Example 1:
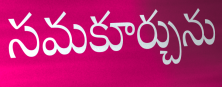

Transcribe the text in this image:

సమకూర్చును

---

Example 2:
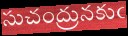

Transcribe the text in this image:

సుచంద్రునకుఁ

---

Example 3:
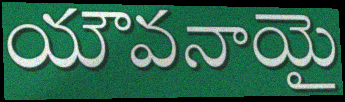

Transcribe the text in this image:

యౌవనాయై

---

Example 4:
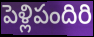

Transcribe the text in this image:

పెళ్లిపందిరి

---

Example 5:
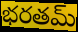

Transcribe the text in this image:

భరతమ్